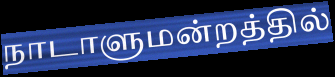
நாடாளுமன்றத்தில்